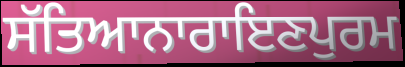
ਸੱਤਿਆਨਾਰਾਇਣਪੁਰਮ